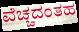
ವೆಚ್ಚದಂತಹ